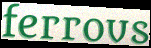
ferrous